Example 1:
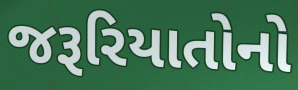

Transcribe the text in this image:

જરૂરિયાતોનો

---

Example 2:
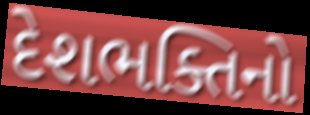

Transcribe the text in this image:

દેશભક્તિનો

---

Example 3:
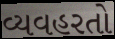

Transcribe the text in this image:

વ્યવહરતો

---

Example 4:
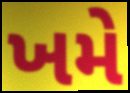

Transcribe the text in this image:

ખમે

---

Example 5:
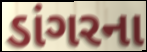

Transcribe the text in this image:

ડાંગરના